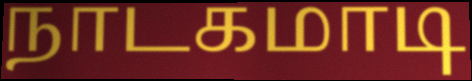
நாடகமாடி